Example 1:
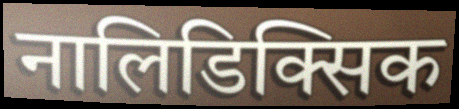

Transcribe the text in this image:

नालिडिक्सिक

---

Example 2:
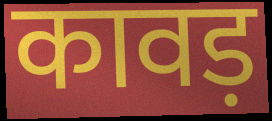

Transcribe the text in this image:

कावड़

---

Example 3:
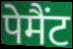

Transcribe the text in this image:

पेमैंट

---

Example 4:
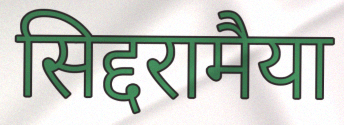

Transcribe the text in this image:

सिद्दरामैया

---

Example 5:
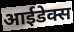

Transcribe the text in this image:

आईडेक्स